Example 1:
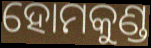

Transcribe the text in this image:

ହୋମକୁଣ୍ଡ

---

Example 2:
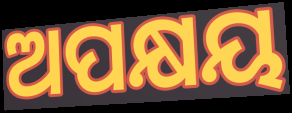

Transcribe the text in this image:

ଅପକ୍ଷୟ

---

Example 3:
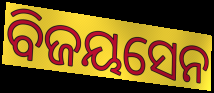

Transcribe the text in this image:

ବିଜୟସେନ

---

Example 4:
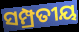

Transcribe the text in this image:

ସମ୍ପ୍ରତୀୟ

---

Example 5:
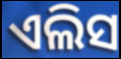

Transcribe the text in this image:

ଏଲିସ